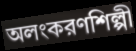
অলংকরণশিল্পী